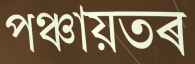
পঞ্চায়তৰ